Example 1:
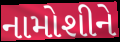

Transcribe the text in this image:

નામોશીને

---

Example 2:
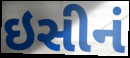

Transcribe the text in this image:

ઇસીનં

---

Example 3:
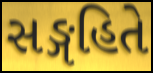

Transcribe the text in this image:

સઙ્ગહિતે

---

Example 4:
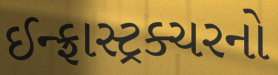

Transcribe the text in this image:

ઈન્ફ્રાસ્ટ્રક્ચરનો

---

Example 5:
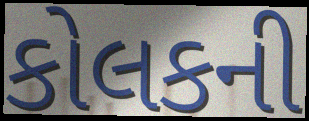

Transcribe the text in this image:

કોલકની